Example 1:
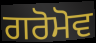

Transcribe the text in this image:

ਗਰੋਮੋਵ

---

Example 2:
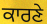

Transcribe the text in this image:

ਕਾਰਣੇ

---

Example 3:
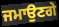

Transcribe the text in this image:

ਜਮਾਉਣਗੇ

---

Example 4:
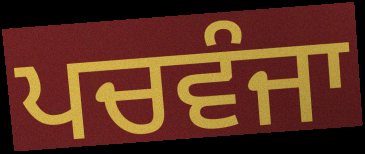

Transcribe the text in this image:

ਪਚਵੰਜਾ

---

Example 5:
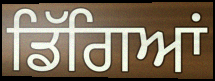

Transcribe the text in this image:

ਡਿੱਗਿਆਂ